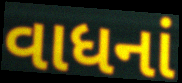
વાધનાં